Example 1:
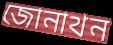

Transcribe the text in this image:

জোনাথন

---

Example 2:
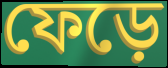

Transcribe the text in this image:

ফেড়ে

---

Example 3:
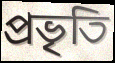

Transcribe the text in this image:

প্রভৃতি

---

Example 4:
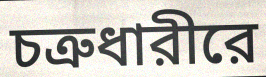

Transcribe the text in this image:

চত্রুধারীরে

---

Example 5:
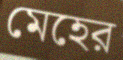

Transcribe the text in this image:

মেহের